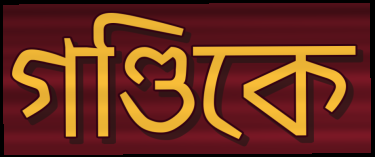
গণ্ডিকে